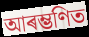
আৰম্ভণিত